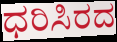
ಧರಿಸಿರದ